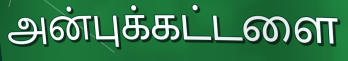
அன்புக்கட்டளை